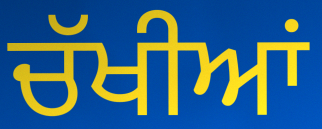
ਚੱਖੀਆਂ